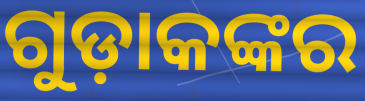
ଗୁଡ଼ାକଙ୍କର